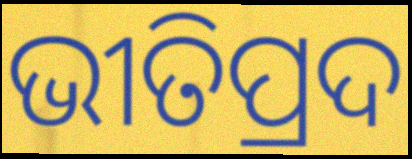
ଭୀତିପ୍ରଦ